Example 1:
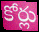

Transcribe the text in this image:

కోర్లు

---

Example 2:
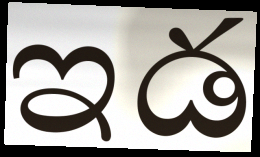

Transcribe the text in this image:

ఇడ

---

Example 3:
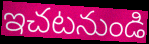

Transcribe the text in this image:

ఇచటనుండి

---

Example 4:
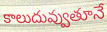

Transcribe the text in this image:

కాలుదువ్వుతూనే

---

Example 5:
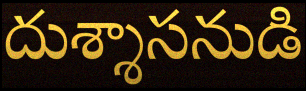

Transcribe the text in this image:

దుశ్శాసనుడి